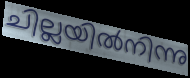
ചില്ലയിൽനിന്നു